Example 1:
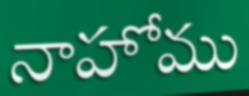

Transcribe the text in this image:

నాహోము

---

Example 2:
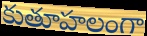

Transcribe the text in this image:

కుతూహలంగా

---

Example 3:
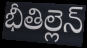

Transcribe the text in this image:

భీతిల్లెన్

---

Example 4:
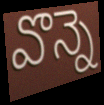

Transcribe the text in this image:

వొన్నె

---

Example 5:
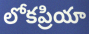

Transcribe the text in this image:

లోకప్రియా